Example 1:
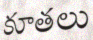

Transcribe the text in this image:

కూతలు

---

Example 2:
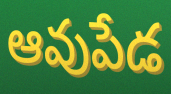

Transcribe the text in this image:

ఆవుపేడ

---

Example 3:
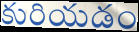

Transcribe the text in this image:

కురియడం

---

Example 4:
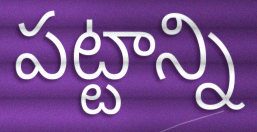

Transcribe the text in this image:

పట్టాన్ని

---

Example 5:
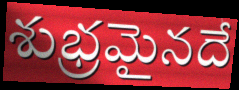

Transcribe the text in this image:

శుభ్రమైనదే